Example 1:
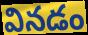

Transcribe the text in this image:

వినడం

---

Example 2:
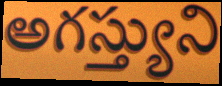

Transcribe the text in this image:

అగస్త్యుని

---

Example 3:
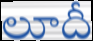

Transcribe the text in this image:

లూదీ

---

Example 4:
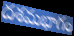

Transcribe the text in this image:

దశమభాగం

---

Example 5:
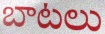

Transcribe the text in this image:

బాటలు